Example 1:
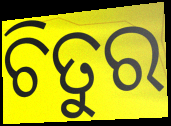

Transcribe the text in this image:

ଚିତୁର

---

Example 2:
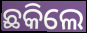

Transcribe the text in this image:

ଛକିଲେ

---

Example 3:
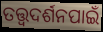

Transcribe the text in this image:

ତତ୍ତ୍ଵଦର୍ଶନପାଇଁ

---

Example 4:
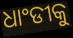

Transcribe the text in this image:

ଧାଂଡୀକୁ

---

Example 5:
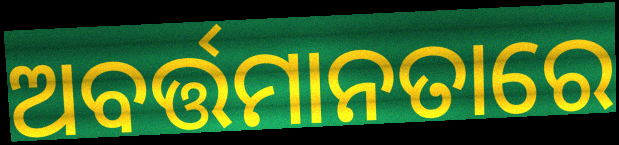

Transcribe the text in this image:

ଅବର୍ତ୍ତମାନତାରେ